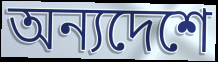
অন্যদেশে